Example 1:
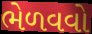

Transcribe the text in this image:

ભેળવવો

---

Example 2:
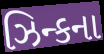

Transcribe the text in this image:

ઝિન્કના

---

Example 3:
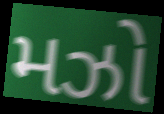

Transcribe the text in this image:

મઝો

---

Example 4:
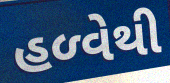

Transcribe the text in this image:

હળ્વેથી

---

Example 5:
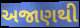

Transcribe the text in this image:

અજાણથી